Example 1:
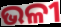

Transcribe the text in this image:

ଭଳୀ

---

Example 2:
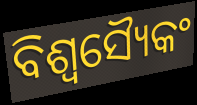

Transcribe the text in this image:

ବିଶ୍ୱସ୍ୟୈକଂ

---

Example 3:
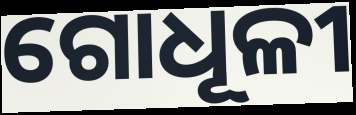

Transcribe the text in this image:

ଗୋଧୂଳୀ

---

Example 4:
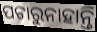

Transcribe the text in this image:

ପଚାରୁନାହାନ୍ତି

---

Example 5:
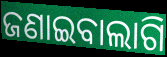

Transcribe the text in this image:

ଜଣାଇବାଲାଗି